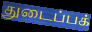
துடைப்பக்